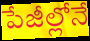
పేజీల్లోనే